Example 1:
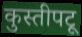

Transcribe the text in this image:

कुस्तीपटू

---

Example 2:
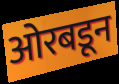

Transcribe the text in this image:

ओरबडून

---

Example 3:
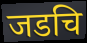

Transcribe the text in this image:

जडचि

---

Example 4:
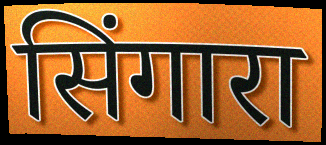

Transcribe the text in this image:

सिंगारा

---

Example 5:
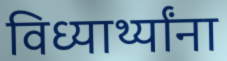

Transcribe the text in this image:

विध्यार्थ्यांना